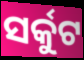
ସର୍କୁଟ